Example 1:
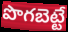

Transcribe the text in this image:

పొగబెట్టే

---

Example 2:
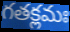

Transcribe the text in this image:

గతక్లమః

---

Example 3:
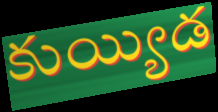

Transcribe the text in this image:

కుయ్యిడ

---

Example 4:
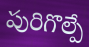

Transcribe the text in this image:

పురిగొల్పే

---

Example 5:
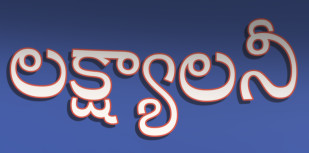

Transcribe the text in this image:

లక్ష్యాలనీ